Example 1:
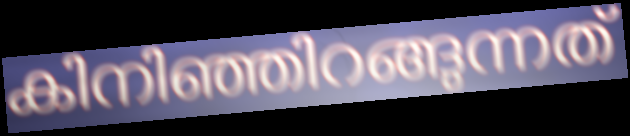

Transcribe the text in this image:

കിനിഞ്ഞിറങ്ങുന്നത്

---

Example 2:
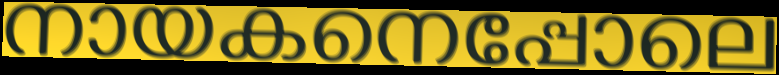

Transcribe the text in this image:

നായകനെപ്പോലെ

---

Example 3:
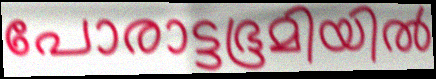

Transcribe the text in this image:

പോരാട്ടഭൂമിയിൽ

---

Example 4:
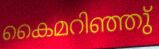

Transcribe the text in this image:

കൈമറിഞ്ഞു്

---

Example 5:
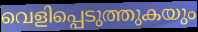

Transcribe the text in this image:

വെളിപ്പെടുത്തുകയും